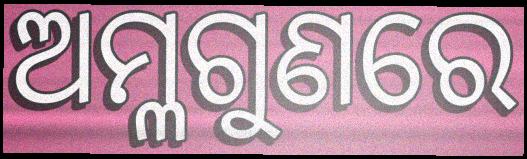
ଅମ୍ଳଗୁଣରେ